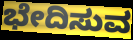
ಭೇದಿಸುವ